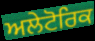
ਅਲੇਟੋਰਿਕ